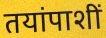
तयांपाशीं